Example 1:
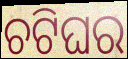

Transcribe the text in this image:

ଚଟିଘର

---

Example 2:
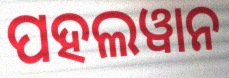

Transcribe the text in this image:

ପହଲୱାନ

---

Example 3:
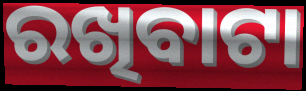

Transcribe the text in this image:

ରଖିବାଟା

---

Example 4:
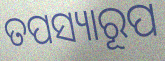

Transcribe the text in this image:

ତପସ୍ୟାରୂପ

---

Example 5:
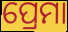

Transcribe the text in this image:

ପ୍ରେମା